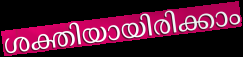
ശക്തിയായിരിക്കാം